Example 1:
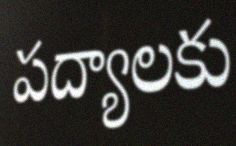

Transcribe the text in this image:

పద్యాలకు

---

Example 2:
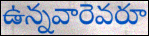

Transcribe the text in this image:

ఉన్నవారెవరూ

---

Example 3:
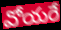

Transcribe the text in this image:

వోయరే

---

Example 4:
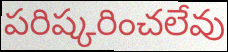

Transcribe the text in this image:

పరిష్కరించలేవు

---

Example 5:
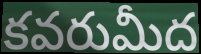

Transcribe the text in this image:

కవరుమీద